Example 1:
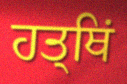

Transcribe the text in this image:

ਹਤ੍ਥਿਂ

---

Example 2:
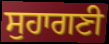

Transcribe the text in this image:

ਸੁਹਾਗਣੀ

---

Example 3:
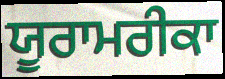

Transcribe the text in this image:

ਯੂਰਾਮਰੀਕਾ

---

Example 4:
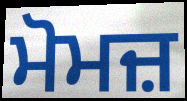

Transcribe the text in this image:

ਮੋਮਜ਼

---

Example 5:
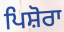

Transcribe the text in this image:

ਪਿਸ਼ੋਰਾ